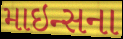
માઇન્સના